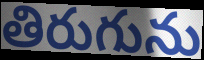
తిరుగును